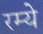
रम्ये